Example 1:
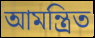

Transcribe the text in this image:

আমন্ত্রিত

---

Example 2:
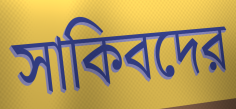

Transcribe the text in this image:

সাকিবদের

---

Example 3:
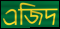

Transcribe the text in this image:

এজিদ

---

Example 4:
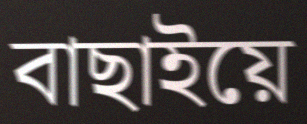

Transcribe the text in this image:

বাছাইয়ে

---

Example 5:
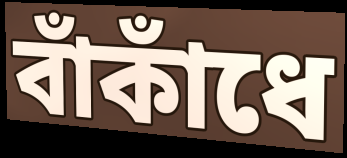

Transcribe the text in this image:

বাঁকাঁধে